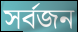
সৰ্বজন